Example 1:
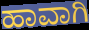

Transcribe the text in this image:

ಹಾವಾಗಿ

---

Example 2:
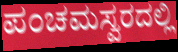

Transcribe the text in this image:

ಪಂಚಮಸ್ವರದಲ್ಲಿ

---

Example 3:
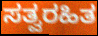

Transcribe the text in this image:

ಸತ್ವರಹಿತ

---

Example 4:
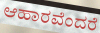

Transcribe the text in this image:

ಆಹಾರವೆಂದರೆ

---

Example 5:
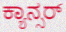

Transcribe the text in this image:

ಕ್ಯಾನ್ಸರ್